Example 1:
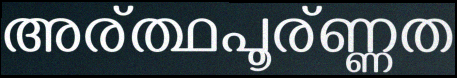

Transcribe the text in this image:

അര്ത്ഥപൂര്ണ്ണത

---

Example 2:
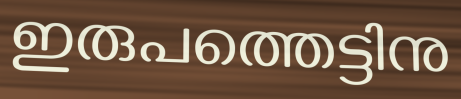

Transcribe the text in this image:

ഇരുപത്തെട്ടിനു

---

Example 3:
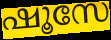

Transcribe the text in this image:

ഷൂസേ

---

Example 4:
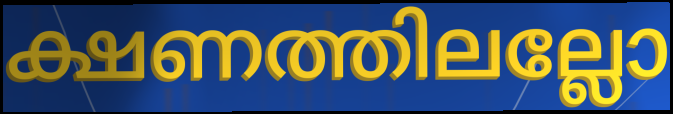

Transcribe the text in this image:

ക്ഷണത്തിലല്ലോ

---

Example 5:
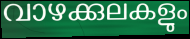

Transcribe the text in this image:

വാഴക്കുലകളും